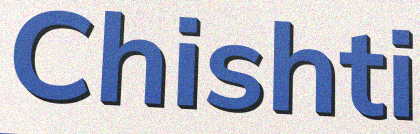
Chishti